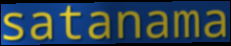
satanama